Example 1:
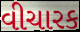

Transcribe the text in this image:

વીચારક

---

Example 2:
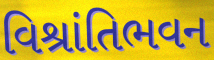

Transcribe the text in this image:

વિશ્રાંતિભવન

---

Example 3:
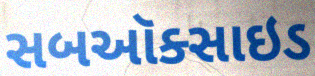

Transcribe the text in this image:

સબઑક્સાઇડ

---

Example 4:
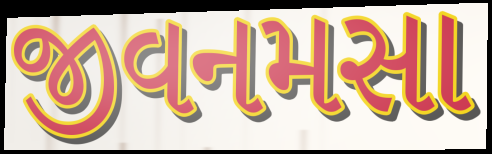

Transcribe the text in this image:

જીવનમસા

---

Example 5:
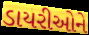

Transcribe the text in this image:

ડાયરીઓને